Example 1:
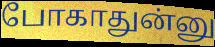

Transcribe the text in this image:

போகாதுன்னு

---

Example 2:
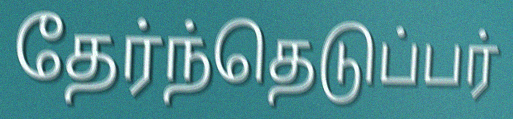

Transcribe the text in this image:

தேர்ந்தெடுப்பர்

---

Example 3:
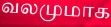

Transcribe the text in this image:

வலமுமாக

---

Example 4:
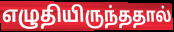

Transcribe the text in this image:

எழுதியிருந்ததால்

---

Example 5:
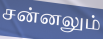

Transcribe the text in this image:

சன்னலும்